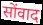
सोंवाद